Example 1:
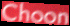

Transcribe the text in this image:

Choon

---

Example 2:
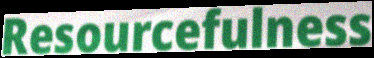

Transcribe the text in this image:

Resourcefulness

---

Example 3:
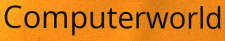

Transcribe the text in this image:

Computerworld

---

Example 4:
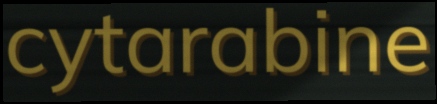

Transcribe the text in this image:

cytarabine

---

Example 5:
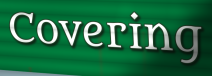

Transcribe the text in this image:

Covering